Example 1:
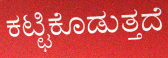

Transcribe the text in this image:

ಕಟ್ಟಿಕೊಡುತ್ತದೆ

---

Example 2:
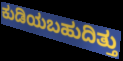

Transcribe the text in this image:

ಕುಡಿಯಬಹುದಿತ್ತು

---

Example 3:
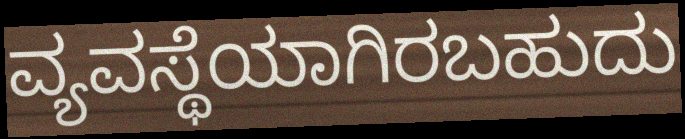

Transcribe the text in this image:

ವ್ಯವಸ್ಥೆಯಾಗಿರಬಹುದು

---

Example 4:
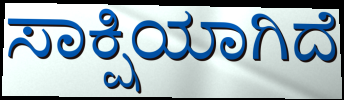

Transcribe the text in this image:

ಸಾಕ್ಷಿಯಾಗಿದೆ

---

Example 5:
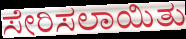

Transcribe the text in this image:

ಸೇರಿಸಲಾಯಿತು